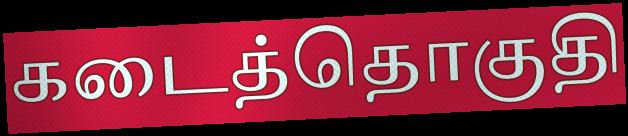
கடைத்தொகுதி